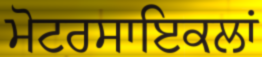
ਮੋਟਰਸਾਇਕਲਾਂ